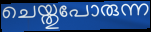
ചെയ്തുപോരുന്ന